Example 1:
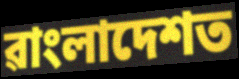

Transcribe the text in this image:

ৱাংলাদেশত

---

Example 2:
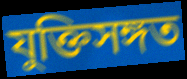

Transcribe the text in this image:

যুক্তিসঙ্গত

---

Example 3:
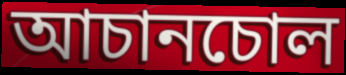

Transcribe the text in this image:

আচানচোল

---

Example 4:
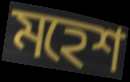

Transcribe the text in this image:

মহেশ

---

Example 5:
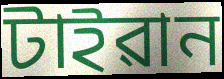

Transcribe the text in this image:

টাইৱান